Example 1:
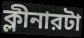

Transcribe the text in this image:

ক্লীনারটা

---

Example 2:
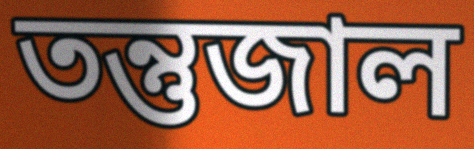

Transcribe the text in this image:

তন্তুজাল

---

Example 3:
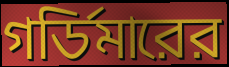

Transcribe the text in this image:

গর্ডিমারের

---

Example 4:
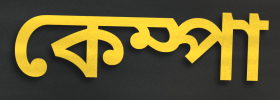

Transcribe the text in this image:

কেম্পা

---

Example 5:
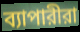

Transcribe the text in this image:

ব্যাপারীরা